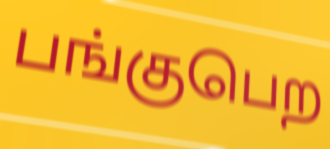
பங்குபெற